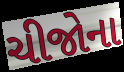
ચીજોના